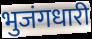
भुजंगधारी